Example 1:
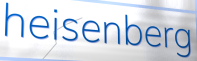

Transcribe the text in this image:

heisenberg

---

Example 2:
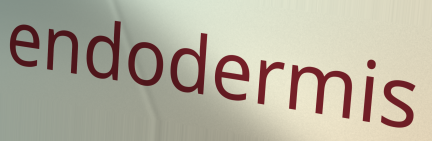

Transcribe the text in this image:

endodermis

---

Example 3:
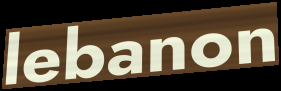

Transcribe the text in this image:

lebanon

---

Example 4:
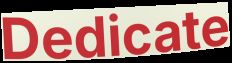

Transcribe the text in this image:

Dedicate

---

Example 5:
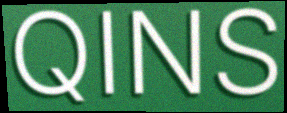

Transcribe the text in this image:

QINS